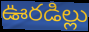
ఊరడిల్లు